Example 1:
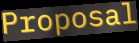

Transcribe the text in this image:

Proposal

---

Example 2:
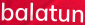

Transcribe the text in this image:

balatun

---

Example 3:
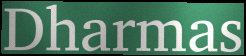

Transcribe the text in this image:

Dharmas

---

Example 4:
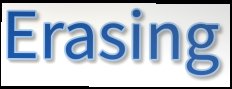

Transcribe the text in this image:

Erasing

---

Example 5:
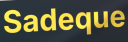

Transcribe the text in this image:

Sadeque